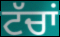
ਟੱਚਾਂ